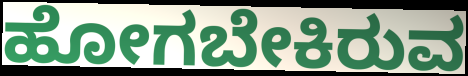
ಹೋಗಬೇಕಿರುವ